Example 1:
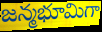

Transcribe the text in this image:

జన్మభూమిగా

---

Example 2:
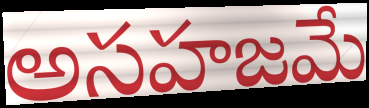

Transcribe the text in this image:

అసహజమే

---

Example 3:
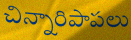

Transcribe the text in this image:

చిన్నారిపాపలు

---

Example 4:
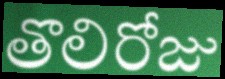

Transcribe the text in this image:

తొలిరోజు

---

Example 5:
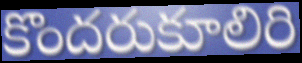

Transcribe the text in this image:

కొందరుకూలిరి